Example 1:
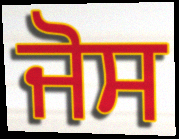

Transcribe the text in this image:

ਜੋਸ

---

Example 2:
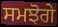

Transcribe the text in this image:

ਸਮਝੋਗੇ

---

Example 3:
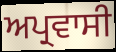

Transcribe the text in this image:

ਅਪ੍ਰਵਾਸੀ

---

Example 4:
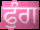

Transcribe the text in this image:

ਫੁੰਗ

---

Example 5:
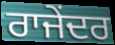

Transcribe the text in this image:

ਰਾਜੇਂਦਰ